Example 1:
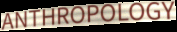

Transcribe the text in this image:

ANTHROPOLOGY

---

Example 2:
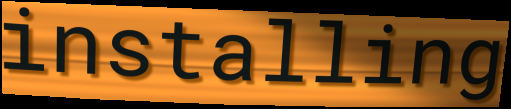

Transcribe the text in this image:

installing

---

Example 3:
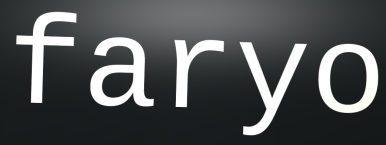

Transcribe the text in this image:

faryo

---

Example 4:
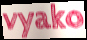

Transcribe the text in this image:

vyako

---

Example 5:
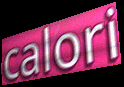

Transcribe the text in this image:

calori